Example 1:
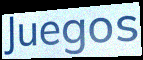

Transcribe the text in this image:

Juegos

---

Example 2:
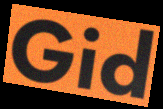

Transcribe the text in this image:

Gid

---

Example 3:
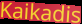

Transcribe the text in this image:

Kaikadis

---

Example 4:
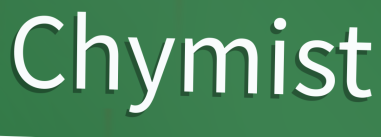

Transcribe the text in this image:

Chymist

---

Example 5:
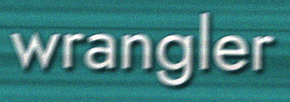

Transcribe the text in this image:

wrangler